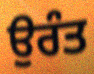
ਉਰੰਤ